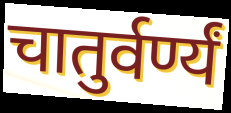
चातुर्वर्ण्यं